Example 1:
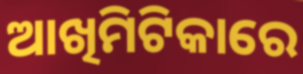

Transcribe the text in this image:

ଆଖିମିଟିକାରେ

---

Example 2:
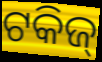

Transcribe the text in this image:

ଟକିଜ୍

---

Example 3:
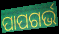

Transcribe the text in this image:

ପାପଗର୍ଭ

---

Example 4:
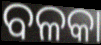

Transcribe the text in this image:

ବଳକା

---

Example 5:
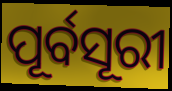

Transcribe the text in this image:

ପୂର୍ବସୂରୀ